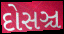
દોસઞ્ચ